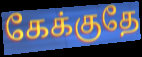
கேக்குதே